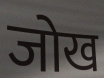
जोख